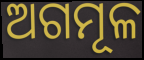
ଅଗମୂଳ